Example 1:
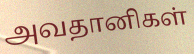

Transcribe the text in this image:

அவதானிகள்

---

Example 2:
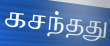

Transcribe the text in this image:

கசந்தது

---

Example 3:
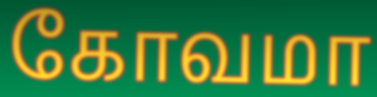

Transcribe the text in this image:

கோவமா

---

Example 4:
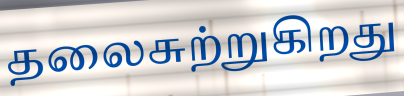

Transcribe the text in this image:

தலைசுற்றுகிறது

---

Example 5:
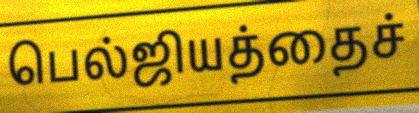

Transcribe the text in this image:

பெல்ஜியத்தைச்